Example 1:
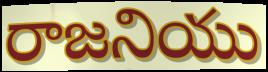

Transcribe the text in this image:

రాజనియు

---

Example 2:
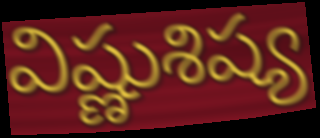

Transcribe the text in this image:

విష్ణుశిష్య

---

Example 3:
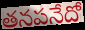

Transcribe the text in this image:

తనపనేదో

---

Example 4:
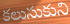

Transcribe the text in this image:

కలుసుకుని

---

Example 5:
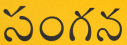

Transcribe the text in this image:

సంగన